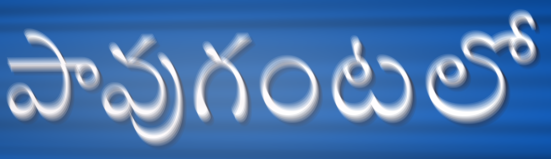
పావుగంటలో